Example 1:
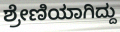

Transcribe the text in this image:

ಶ್ರೇಣಿಯಾಗಿದ್ದು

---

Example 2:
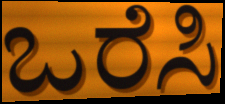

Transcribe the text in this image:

ಒರೆಸಿ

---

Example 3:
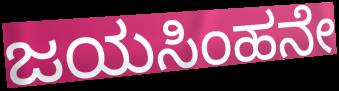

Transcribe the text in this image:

ಜಯಸಿಂಹನೇ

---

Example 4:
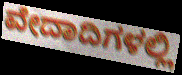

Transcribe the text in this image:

ವೇದಾದಿಗಳಲ್ಲಿ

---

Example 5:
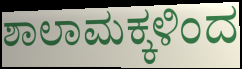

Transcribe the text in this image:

ಶಾಲಾಮಕ್ಕಳಿಂದ